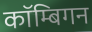
कॉम्बिगन